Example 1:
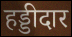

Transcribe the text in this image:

हड्डीदार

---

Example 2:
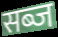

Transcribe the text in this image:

सब्ज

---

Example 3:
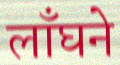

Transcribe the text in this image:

लाँघने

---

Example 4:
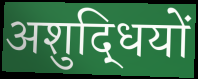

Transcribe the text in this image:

अशुद्धियों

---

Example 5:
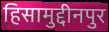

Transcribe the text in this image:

हिसामुद्दीनपुर